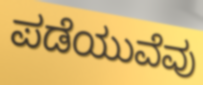
ಪಡೆಯುವೆವು